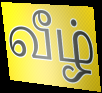
வீழ்